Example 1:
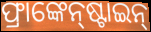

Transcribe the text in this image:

ଫ୍ରାଙ୍କେନ୍‌ଷ୍ଟାଇନ୍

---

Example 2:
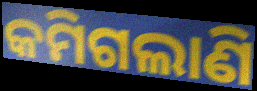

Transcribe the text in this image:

କମିଗଲାଣି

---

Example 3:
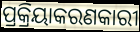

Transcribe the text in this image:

ପ୍ରକ୍ରିୟାକରଣକାରୀ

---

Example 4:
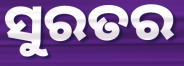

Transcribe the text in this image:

ସୁରତର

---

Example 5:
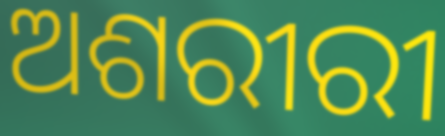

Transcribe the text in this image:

ଅଶରୀରୀ